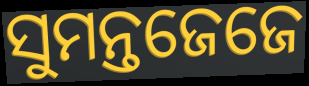
ସୁମନ୍ତଜେଜେ